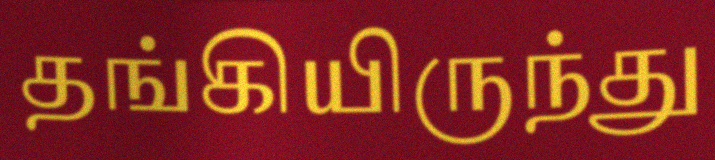
தங்கியிருந்து